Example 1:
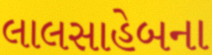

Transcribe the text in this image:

લાલસાહેબના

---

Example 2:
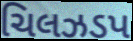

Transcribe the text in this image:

ચિલઝડપ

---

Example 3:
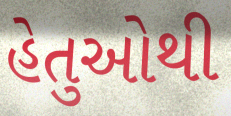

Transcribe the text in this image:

હેતુઓથી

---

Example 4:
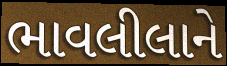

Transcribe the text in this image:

ભાવલીલાને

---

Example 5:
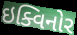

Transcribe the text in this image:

ઇક્વિનોર